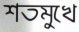
শতমুখে